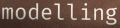
modelling